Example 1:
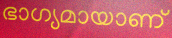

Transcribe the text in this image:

ഭാഗ്യമായാണ്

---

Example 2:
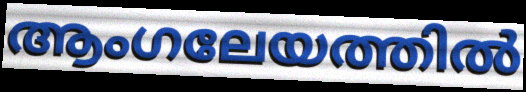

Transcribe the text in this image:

ആംഗലേയത്തിൽ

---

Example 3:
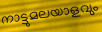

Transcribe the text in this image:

നാട്ടുമലയാളവും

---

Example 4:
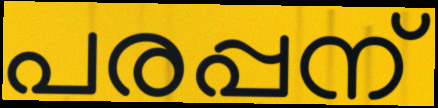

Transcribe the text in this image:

പരപ്പന്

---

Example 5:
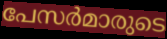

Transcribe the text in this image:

പേസർമാരുടെ